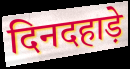
दिनदहाड़े